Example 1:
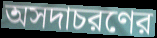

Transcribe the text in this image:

অসদাচরণের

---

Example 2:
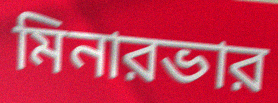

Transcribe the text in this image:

মিনারভার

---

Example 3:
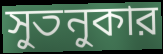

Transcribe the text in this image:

সুতনুকার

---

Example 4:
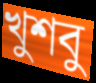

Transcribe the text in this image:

খুশবু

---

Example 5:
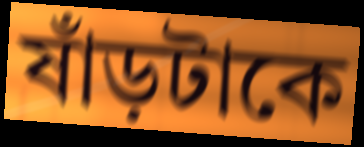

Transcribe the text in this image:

ষাঁড়টাকে